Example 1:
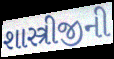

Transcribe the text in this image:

શાસ્ત્રીજીની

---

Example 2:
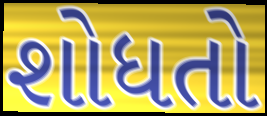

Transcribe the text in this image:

શોધતો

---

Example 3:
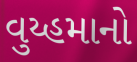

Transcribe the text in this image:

વુય્હમાનો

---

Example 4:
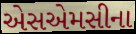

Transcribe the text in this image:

એસએમસીના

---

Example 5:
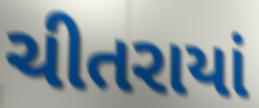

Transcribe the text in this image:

ચીતરાયાં